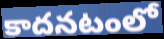
కాదనటంలో